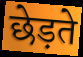
छेड़ते